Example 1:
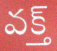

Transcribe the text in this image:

వక్త్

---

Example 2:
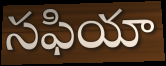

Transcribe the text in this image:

సఫియా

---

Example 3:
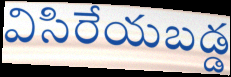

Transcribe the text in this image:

విసిరేయబడ్డ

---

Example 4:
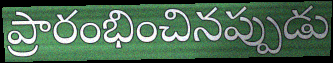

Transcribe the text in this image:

ప్రారంభించినప్పుడు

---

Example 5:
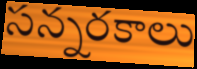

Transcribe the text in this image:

సన్నరకాలు